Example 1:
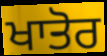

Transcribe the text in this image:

ਖਾਤੋਰ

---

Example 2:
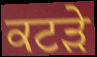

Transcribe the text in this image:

ਕਟੜੇ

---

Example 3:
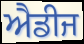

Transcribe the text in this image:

ਐਡੀਜ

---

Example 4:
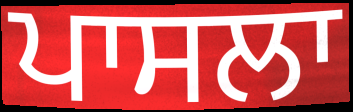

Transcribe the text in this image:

ਪਾਸਲਾ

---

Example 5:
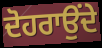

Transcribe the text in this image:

ਦੋਹਰਾਉਂਦੇ